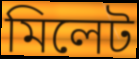
মিলেট